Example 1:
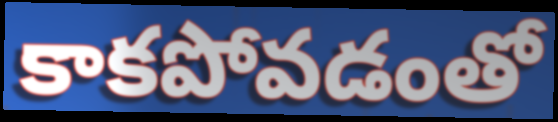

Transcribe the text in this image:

కాకపోవడంతో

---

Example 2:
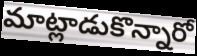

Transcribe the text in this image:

మాట్లాడుకొన్నారో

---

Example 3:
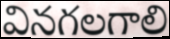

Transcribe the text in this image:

వినగలగాలి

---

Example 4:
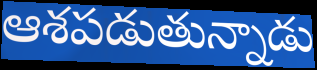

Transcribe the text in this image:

ఆశపడుతున్నాడు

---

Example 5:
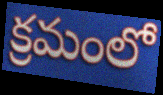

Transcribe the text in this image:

క్రమంలో